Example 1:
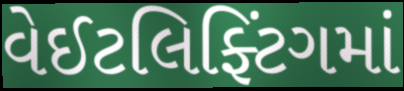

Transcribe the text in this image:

વેઈટલિફ્ટિંગમાં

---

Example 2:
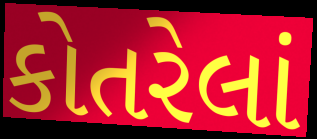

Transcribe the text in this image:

કોતરેલાં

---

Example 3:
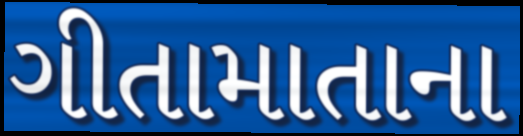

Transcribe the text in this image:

ગીતામાતાના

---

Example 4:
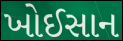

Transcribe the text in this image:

ખોઈસાન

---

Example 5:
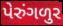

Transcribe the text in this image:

પેરુંગળુર